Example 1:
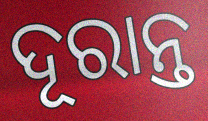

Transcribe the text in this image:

ଦୂରାନ୍ତ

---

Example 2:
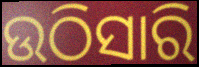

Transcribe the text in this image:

ଉଠିସାରି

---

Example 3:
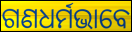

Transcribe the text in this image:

ଗଣଧର୍ମଭାବେ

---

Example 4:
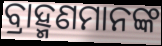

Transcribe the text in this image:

ବ୍ରାହ୍ମଣମାନଙ୍କ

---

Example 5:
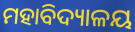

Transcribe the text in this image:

ମହାବିଦ୍ୟାଳୟ